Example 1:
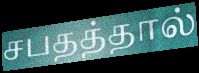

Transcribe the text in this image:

சபதத்தால்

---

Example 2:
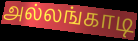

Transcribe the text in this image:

அல்லங்காடி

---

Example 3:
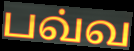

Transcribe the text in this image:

பவ்வ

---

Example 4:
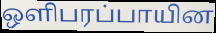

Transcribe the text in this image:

ஒளிபரப்பாயின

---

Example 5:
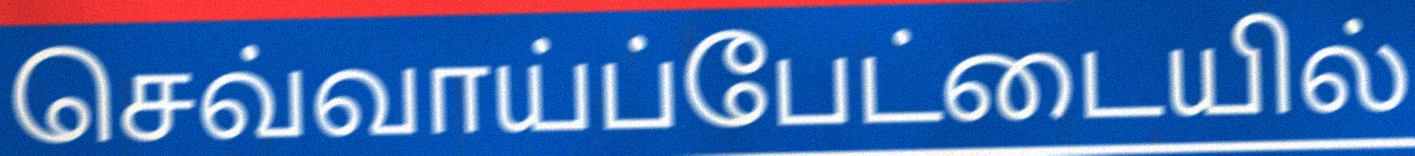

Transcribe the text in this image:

செவ்வாய்ப்பேட்டையில்